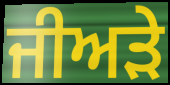
ਜੀਅੜੇ